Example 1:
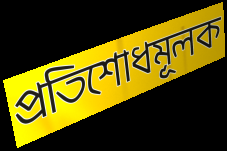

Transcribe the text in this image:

প্রতিশোধমূলক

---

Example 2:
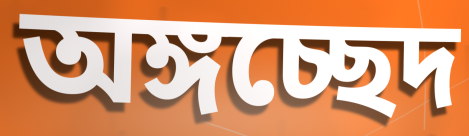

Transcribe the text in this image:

অঙ্গচ্ছেদ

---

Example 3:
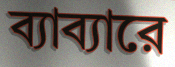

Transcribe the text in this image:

ব্যাব্যারে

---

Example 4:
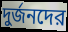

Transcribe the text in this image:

দুর্জনদের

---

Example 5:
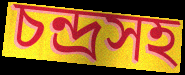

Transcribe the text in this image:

চন্দ্রসহ